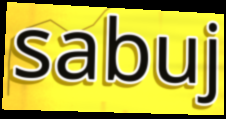
sabuj